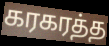
கரகரத்த